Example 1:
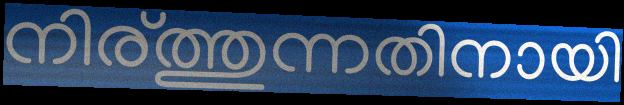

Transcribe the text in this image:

നിര്ത്തുന്നതിനായി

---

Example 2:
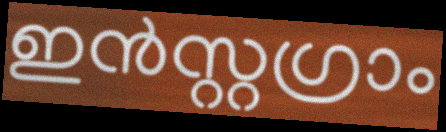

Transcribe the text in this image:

ഇൻസ്റ്റഗ്രാം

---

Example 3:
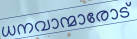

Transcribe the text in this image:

ധനവാന്മാരോട്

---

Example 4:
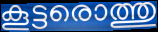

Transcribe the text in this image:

കൂട്ടരൊത്തു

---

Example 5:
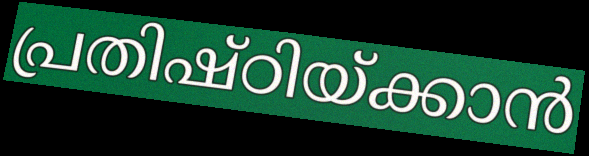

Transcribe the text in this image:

പ്രതിഷ്ഠിയ്ക്കാൻ